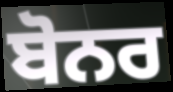
ਬੋਨਰ